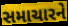
સમાચારને